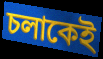
চলাকেই